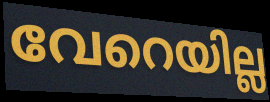
വേറെയില്ല